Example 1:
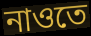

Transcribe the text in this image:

নাওতে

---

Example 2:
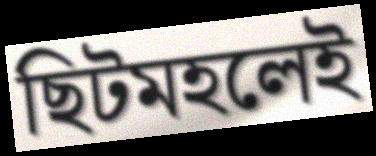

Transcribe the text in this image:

ছিটমহলেই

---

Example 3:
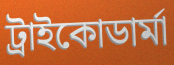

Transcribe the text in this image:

ট্রাইকোডার্মা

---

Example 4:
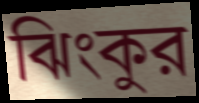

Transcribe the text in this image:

ঝিংকুর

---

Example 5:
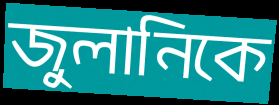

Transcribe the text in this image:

জুলানিকে